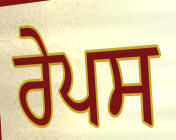
ਰੇਪਸ